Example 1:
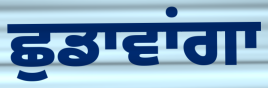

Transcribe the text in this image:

ਛੁਡਾਵਾਂਗਾ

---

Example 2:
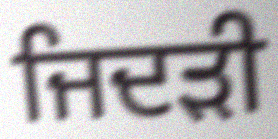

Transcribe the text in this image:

ਜਿਦੜੀ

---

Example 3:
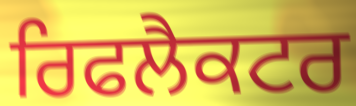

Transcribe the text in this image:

ਰਿਫਲੈਕਟਰ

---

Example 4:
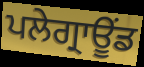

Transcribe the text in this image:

ਪਲੇਗ੍ਰਾਊਂਡ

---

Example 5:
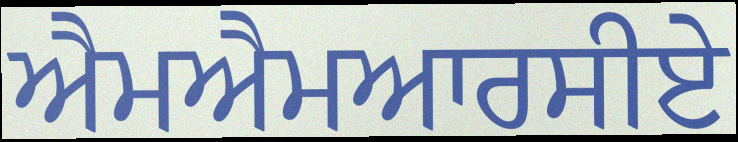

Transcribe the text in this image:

ਐਮਐਮਆਰਸੀਏ